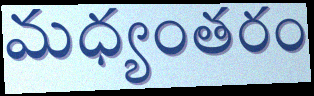
మధ్యంతరం